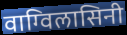
वाग्विलासिनी